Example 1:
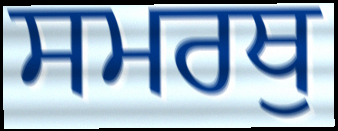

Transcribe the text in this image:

ਸਮਰਥੁ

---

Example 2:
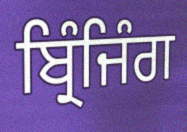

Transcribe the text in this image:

ਬ੍ਰਿੰਜਿੰਗ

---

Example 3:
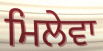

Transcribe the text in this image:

ਮਿਲੇਵਾ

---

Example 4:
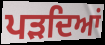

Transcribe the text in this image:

ਪੜਦਿਆਂ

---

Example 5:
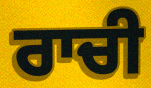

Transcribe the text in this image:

ਰਾਚੀ